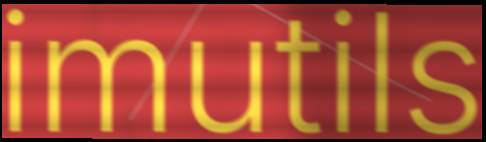
imutils